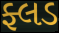
ફ્લડ